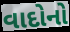
વાદોનો